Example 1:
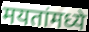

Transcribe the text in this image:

मयतांमध्ये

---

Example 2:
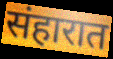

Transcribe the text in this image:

संहारात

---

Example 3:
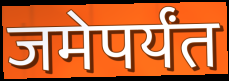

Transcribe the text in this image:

जमेपर्यंत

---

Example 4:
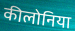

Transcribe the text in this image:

कीलोनिया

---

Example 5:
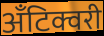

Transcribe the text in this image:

अँटिक्वरी